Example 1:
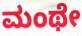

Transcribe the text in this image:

ಮಂಥೇ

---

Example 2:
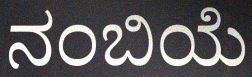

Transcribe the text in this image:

ನಂಬಿಯೆ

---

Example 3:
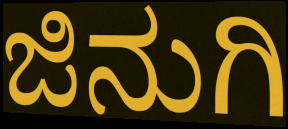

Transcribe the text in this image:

ಜಿನುಗಿ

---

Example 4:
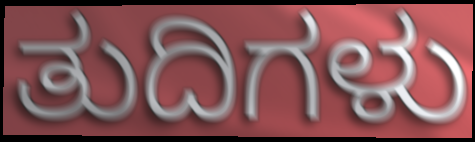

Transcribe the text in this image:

ತುದಿಗಳು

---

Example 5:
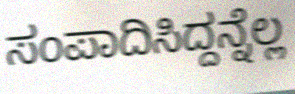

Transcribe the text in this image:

ಸಂಪಾದಿಸಿದ್ದನ್ನೆಲ್ಲ